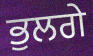
ਭੁਲਗੇ